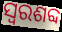
ସ୍ୱରଶବ୍ଦ